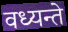
वध्यन्ते